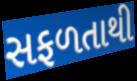
સફળતાથી